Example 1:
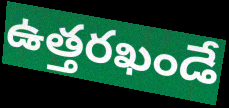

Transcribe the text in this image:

ఉత్తరఖండే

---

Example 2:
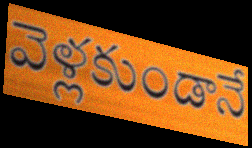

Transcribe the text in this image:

వెళ్లకుండానే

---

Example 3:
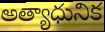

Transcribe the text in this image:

అత్యాధునిక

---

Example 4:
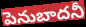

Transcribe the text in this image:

పెనుబాదనీ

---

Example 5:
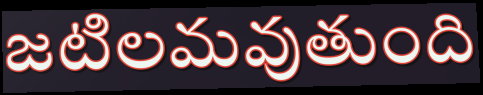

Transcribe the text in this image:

జటిలమవుతుంది